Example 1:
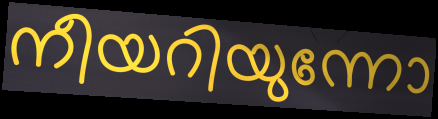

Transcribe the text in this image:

നീയറിയുന്നോ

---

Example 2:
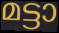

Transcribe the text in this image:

മട്ടാ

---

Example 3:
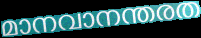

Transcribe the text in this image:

മാനവാനന്തരത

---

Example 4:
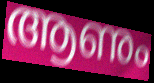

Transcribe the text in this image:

ആണും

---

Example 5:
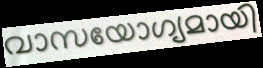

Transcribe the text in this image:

വാസയോഗ്യമായി